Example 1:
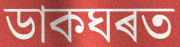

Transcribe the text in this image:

ডাকঘৰত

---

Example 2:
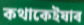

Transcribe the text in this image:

কথাকেইষাৰ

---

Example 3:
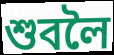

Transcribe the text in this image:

শুবলৈ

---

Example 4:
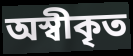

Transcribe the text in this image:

অস্বীকৃত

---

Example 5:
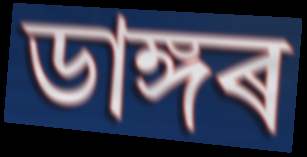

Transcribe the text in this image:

ডাঙ্গৰ